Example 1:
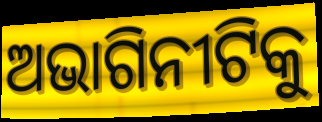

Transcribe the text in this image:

ଅଭାଗିନୀଟିକୁ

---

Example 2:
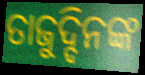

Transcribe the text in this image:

ତାଜୁଦ୍ଦିନଙ୍କ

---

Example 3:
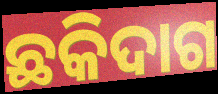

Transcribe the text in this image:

ଛକିଦାଗ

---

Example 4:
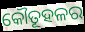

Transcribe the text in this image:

କୌତୂହଳର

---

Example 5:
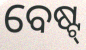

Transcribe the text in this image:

ବେଷ୍ଟ୍